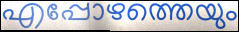
എപ്പോഴത്തെയും